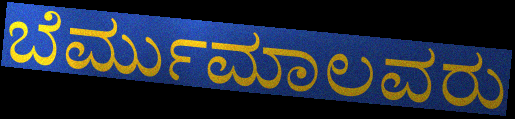
ಬೆರ್ಮುಮಾಲವರು